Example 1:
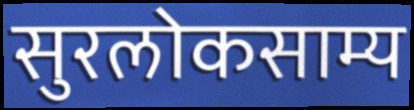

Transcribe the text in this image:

सुरलोकसाम्य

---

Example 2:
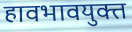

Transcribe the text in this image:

हावभावयुक्त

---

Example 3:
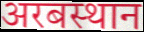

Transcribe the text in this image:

अरबस्थान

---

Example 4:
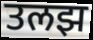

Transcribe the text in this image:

उलझ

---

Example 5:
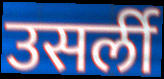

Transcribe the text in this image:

उसर्ली